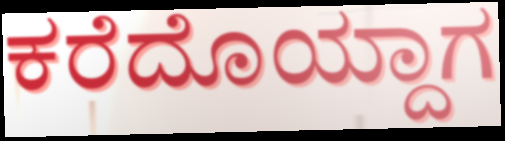
ಕರೆದೊಯ್ದಾಗ